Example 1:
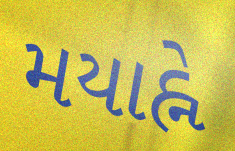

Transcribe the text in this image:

મયાહ્ને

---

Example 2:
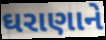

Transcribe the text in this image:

ઘરાણાને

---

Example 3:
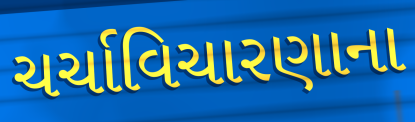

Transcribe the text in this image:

ચર્ચાવિચારણાના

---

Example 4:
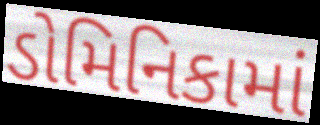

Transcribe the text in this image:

ડોમિનિકામાં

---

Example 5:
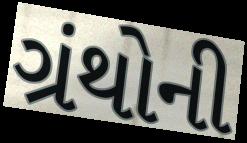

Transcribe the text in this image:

ગ્રંથોની